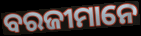
ବରଜୀମାନେ